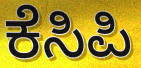
ಕೆಸಿಪಿ